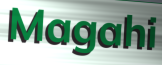
Magahi